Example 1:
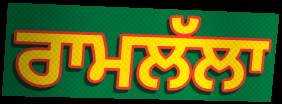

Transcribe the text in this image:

ਰਾਮਲੱਲਾ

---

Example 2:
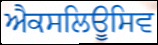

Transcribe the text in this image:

ਐਕਸਲਿਊਸਿਵ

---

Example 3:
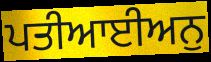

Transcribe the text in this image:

ਪਤੀਆਈਅਨੁ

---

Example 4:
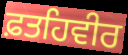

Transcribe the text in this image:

ਫ਼ਤਹਿਵੀਰ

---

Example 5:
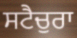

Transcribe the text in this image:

ਸਟੈਚੁਰਾ